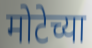
मोटेच्या